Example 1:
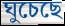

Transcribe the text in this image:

ঘুচেছে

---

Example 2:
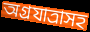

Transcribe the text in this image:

অগ্রযাত্রাসহ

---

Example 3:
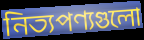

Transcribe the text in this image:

নিত্যপণ্যগুলো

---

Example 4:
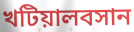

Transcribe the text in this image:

খটিয়ালবসান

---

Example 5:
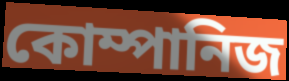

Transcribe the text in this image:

কোম্পানিজ